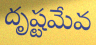
దృష్టమేవ